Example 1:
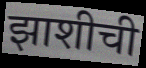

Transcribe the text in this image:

झाशीची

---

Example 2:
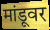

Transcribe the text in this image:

मांडूवर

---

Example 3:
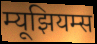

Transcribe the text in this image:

म्यूझियम्स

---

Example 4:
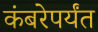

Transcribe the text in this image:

कंबरेपर्यंत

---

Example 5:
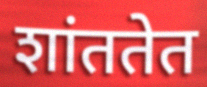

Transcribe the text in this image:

शांततेत